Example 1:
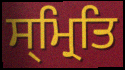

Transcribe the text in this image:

ਸ੍ਮ੍ਰਿਤਿ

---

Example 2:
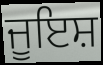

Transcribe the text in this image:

ਜੂਇਸ਼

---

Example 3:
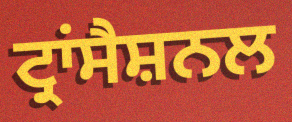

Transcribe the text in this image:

ਟ੍ਰਾਂਸੈਸ਼ਨਲ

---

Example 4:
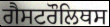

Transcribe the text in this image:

ਗੈਸਟਰੌਲਿਥਸ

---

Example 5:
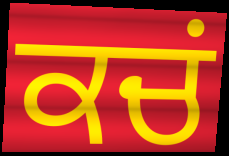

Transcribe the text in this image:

ਕਚਂ